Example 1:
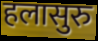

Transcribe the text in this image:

हलासुरु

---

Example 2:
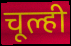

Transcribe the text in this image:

चूल्ही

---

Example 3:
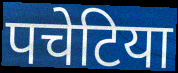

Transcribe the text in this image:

पचेटिया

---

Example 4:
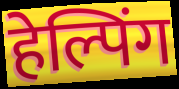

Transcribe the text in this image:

हेल्पिंग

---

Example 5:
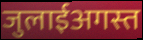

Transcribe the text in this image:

जुलाईअगस्त